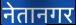
नेतानगर